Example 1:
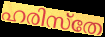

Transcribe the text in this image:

ഹരിസ്തേ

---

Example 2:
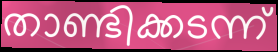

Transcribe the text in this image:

താണ്ടിക്കടന്ന്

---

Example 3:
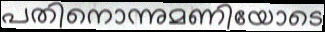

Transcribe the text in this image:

പതിനൊന്നുമണിയോടെ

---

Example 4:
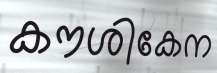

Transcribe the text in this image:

കൗശികേന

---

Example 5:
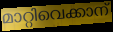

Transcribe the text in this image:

മാറ്റിവെക്കാന്